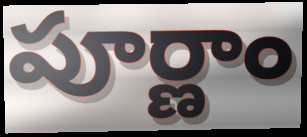
పూర్ణాం